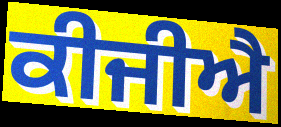
ਕੀਜੀਐ